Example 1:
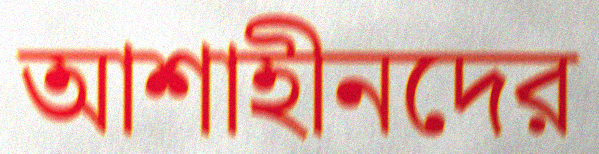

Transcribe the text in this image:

আশাহীনদের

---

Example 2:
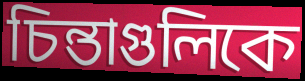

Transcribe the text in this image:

চিন্তাগুলিকে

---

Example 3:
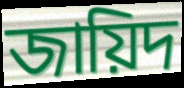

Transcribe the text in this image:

জায়িদ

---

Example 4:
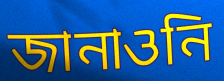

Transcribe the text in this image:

জানাওনি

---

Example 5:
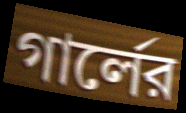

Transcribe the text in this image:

গার্লের